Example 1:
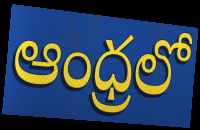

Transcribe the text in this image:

ఆంధ్రలో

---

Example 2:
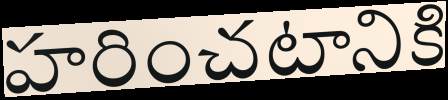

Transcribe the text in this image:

హరించటానికి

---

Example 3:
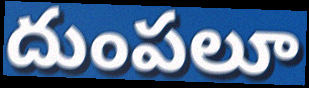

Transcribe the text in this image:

దుంపలూ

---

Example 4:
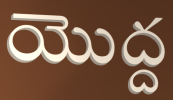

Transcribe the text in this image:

యొద్ద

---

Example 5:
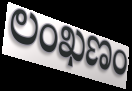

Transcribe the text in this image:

లంఖణం